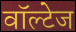
वॉल्टेज